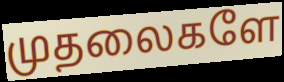
முதலைகளே